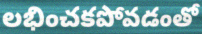
లభించకపోవడంతో